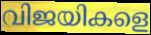
വിജയികളെ